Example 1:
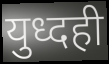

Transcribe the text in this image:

युध्दही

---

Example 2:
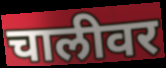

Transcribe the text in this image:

चालीवर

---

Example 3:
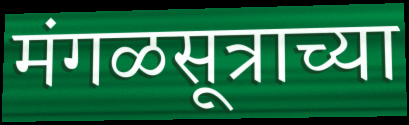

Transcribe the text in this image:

मंगळसूत्राच्या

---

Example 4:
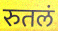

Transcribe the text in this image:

रुतलं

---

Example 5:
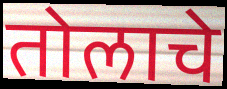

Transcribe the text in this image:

तोलाचे